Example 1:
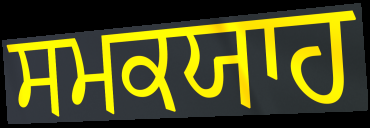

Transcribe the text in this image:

ਸਮਕਯਾਹ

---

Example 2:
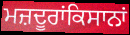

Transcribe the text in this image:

ਮਜ਼ਦੂਰਾਂਕਿਸਾਨਾਂ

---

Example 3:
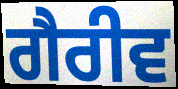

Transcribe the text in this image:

ਗੈਰੀਵ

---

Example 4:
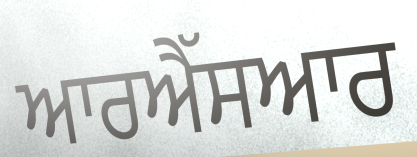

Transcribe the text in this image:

ਆਰਐੱਸਆਰ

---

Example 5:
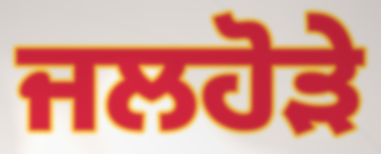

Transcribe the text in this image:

ਜਲਹੋੜੇ